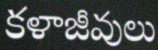
కళాజీవులు